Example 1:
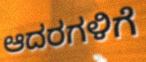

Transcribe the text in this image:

ಆದರಗಳಿಗೆ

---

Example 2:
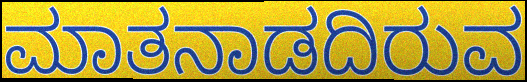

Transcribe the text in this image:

ಮಾತನಾಡದಿರುವ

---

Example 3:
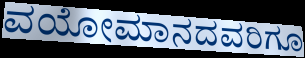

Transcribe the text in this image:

ವಯೋಮಾನದವರಿಗೂ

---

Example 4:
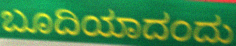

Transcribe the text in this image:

ಬೂದಿಯಾದಂದು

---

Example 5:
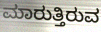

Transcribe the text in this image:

ಮಾರುತ್ತಿರುವ